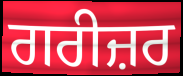
ਗਰੀਜ਼ਰ